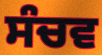
ਸੰਚਵ